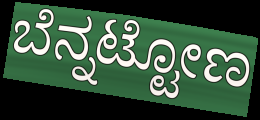
ಬೆನ್ನಟ್ಟೋಣ